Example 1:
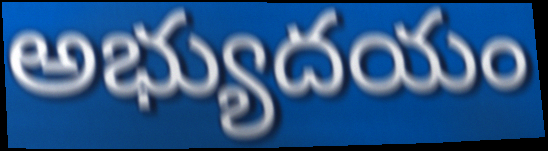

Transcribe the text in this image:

అభ్యుదయం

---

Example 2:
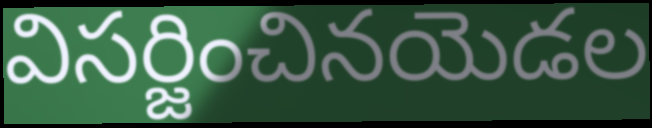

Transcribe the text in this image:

విసర్జించినయెడల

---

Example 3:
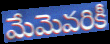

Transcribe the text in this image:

మేమెవరికీ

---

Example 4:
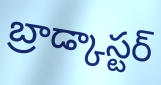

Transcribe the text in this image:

బ్రాడ్కాస్టర్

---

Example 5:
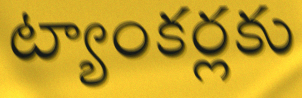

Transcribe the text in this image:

ట్యాంకర్లకు